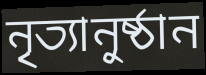
নৃত্যানুষ্ঠান